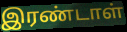
இரண்டாள்